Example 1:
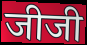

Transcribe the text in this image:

जीजी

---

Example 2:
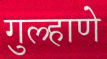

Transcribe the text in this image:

गुल्हाणे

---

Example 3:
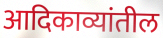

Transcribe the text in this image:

आदिकाव्यांतील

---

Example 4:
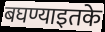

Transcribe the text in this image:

बघण्याइतके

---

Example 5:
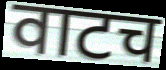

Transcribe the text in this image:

वाटच